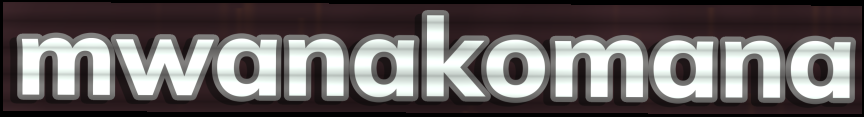
mwanakomana